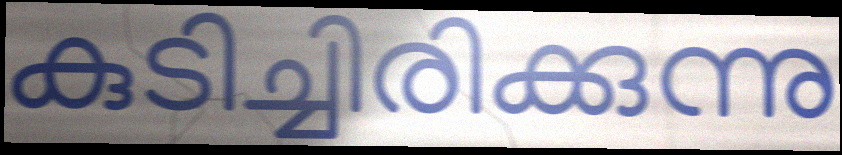
കുടിച്ചിരിക്കുന്നു